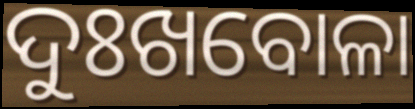
ଦୁଃଖବୋଳା